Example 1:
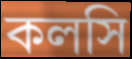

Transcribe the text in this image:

কলসি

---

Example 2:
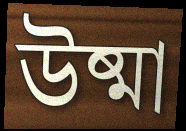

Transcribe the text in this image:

উষ্মা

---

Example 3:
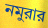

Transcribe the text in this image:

নমুরার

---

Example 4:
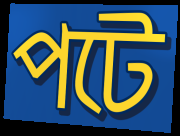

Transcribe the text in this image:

পটে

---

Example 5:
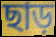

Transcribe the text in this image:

ছাড়